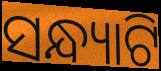
ସନ୍ଧ୍ୟାଟି